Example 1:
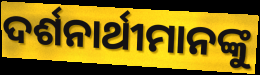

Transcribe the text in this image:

ଦର୍ଶନାର୍ଥୀମାନଙ୍କୁ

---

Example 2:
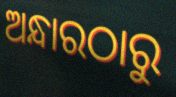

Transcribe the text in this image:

ଅନ୍ଧାରଠାରୁ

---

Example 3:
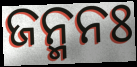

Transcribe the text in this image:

ଜନ୍ମନଃ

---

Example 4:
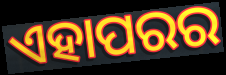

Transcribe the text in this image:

ଏହାପରର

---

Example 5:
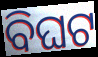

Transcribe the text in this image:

ବିଘଟ